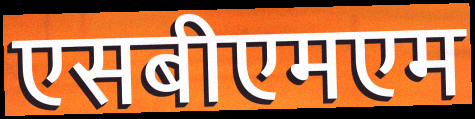
एसबीएमएम